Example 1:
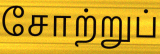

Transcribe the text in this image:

சோற்றுப்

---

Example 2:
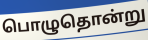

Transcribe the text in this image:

பொழுதொன்று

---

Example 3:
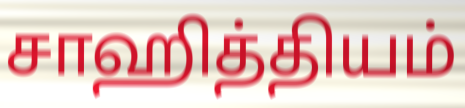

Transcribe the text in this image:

சாஹித்தியம்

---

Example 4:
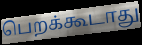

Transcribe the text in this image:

பெறக்கூடாது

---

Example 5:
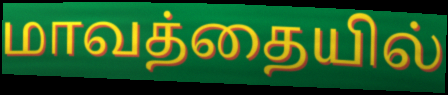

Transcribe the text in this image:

மாவத்தையில்